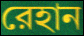
রেহান